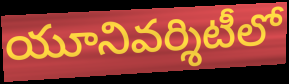
యూనివర్శిటీలో